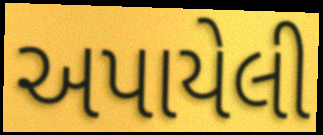
અપાયેલી